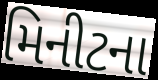
મિનીટના